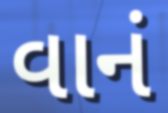
વાનં